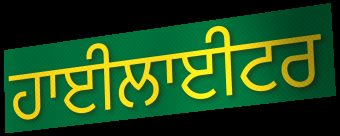
ਹਾਈਲਾਈਟਰ